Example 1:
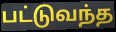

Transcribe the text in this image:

பட்டுவந்த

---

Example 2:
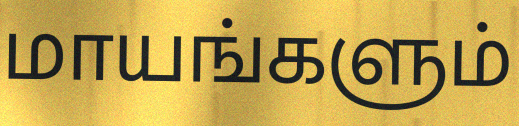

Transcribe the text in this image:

மாயங்களும்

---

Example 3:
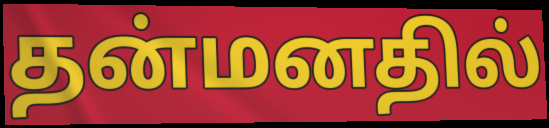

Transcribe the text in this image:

தன்மனதில்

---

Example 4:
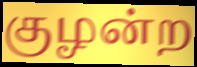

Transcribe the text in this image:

குழன்ற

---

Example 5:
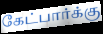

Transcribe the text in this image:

கேட்பார்க்கு